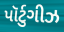
પૉર્ટુગીઝ